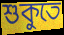
শুকুতে